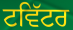
ਟਵਿੱਟਰ